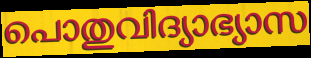
പൊതുവിദ്യാഭ്യാസ